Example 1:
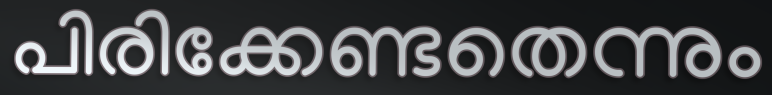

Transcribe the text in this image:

പിരിക്കേണ്ടതെന്നും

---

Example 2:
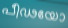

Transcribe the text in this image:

പീഢയോ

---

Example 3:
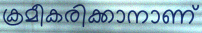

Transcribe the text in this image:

ക്രമീകരിക്കാനാണ്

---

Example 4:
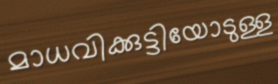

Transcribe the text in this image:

മാധവിക്കുട്ടിയോടുള്ള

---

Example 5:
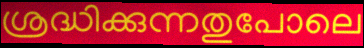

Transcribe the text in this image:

ശ്രദ്ധിക്കുന്നതുപോലെ